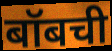
बॉबची